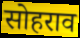
सोहराव